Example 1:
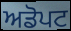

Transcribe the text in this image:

ਅਡੋਪਟ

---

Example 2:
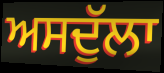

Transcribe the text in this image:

ਅਸਦੁੱਲਾ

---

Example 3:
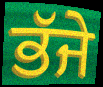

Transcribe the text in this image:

ਭੱਜੇ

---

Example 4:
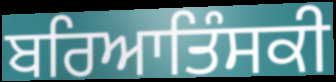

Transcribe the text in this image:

ਬਰਿਆਤਿੰਸਕੀ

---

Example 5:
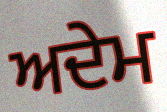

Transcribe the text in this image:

ਅਦੇਮ